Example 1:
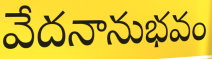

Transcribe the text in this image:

వేదనానుభవం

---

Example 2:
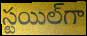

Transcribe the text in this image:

స్టయిల్‌గా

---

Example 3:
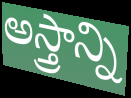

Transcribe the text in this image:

అస్త్రాన్ని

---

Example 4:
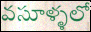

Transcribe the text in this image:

వసూళ్ళలో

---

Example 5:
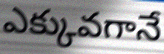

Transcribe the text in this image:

ఎక్కువగానే